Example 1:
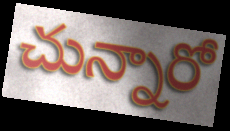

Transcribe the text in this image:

చున్నారో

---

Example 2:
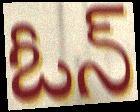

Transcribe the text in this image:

ఓన్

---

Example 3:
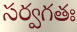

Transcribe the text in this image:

సర్వగతః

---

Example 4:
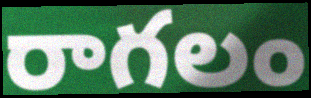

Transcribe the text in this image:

రాగలం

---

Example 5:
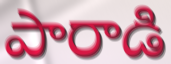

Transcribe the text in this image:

పారాడి